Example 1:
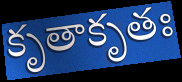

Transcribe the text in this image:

కృతాకృతః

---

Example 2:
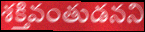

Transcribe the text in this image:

శక్తివంతుడనని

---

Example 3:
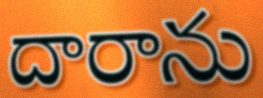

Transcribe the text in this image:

దారాను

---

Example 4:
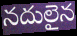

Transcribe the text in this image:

నదులైన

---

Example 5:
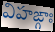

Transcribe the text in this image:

విహఙ్గాః